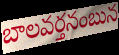
బాలవర్తనంబున